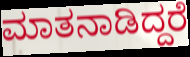
ಮಾತನಾಡಿದ್ದರೆ